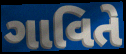
ગાવિતે